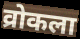
व्रोकला